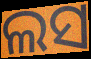
ଲସ